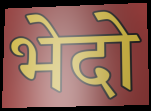
भेदो